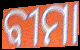
ବୀମା